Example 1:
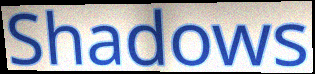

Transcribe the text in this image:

Shadows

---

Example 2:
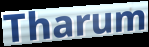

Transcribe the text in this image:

Tharum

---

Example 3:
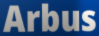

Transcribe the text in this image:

Arbus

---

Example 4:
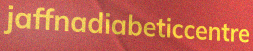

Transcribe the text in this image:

jaffnadiabeticcentre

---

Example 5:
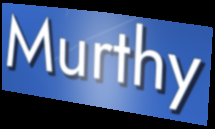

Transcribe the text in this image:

Murthy